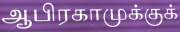
ஆபிரகாமுக்குக்